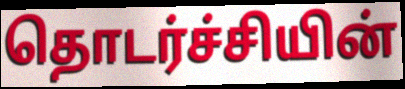
தொடர்ச்சியின்